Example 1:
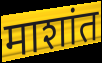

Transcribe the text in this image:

माशांत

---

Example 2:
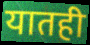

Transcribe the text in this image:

यातही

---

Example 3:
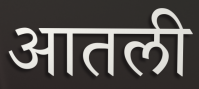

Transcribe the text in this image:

आतली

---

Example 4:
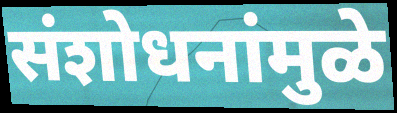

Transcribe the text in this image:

संशोधनांमुळे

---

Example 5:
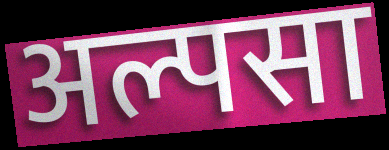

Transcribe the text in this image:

अल्पसा